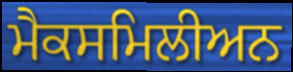
ਮੈਕਸਮਿਲੀਅਨ